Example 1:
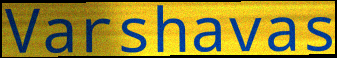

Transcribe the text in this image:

Varshavas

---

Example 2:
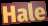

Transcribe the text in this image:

Hale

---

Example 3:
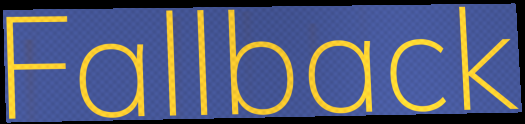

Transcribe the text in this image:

Fallback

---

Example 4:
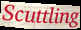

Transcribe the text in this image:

Scuttling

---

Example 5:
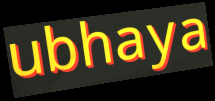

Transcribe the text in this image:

ubhaya